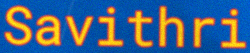
Savithri